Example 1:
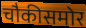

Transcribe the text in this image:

चौकीसमोर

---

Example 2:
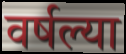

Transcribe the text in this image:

वर्षल्या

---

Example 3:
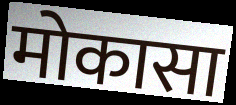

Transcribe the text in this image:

मोकासा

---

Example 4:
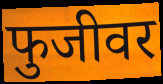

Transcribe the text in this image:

फुजीवर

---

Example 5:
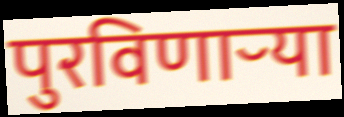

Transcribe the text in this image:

पुरविणाऱ्या